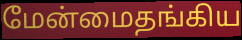
மேன்மைதங்கிய